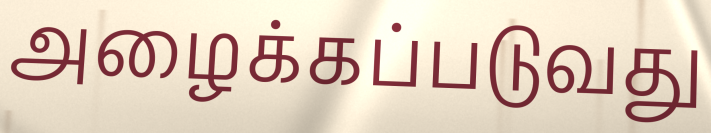
அழைக்கப்படுவது